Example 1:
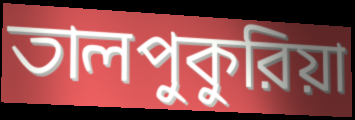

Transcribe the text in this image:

তালপুকুরিয়া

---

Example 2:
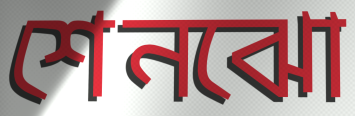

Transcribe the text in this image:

শেনঝো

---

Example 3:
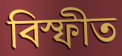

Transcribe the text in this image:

বিস্ফীত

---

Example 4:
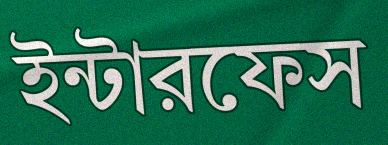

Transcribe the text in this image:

ইন্টারফেস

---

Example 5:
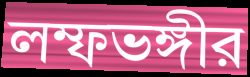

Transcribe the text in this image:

লম্ফভঙ্গীর